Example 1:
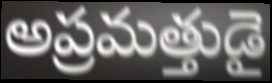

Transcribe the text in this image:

అప్రమత్తుడై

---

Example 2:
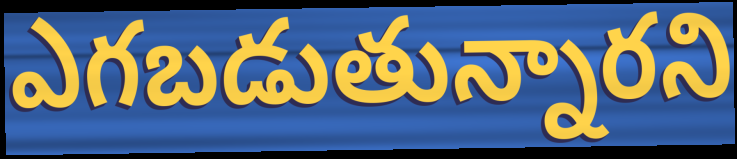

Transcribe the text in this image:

ఎగబడుతున్నారని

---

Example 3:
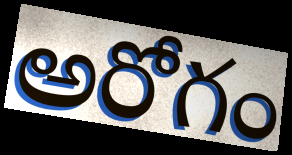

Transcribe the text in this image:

అరోగం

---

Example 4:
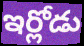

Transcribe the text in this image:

ఇర్లోడు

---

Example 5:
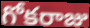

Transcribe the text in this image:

గోకరాజు